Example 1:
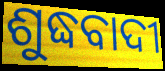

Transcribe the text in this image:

ଶୁଦ୍ଧବାଦୀ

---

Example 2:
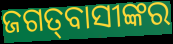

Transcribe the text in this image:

ଜଗତ୍‍ବାସୀଙ୍କର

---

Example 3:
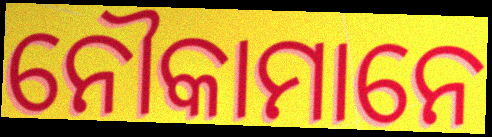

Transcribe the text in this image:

ନୌକାମାନେ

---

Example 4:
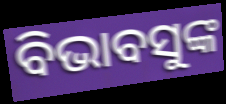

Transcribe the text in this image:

ବିଭାବସୁଙ୍କ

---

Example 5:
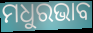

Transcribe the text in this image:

ମଧୁରଭାବ